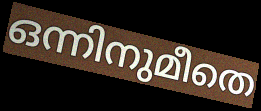
ഒന്നിനുമീതെ